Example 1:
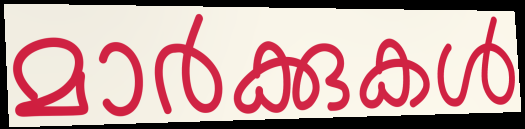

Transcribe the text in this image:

മാർക്കുകൾ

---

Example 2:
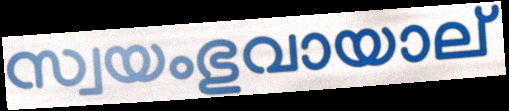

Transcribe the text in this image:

സ്വയംഭുവായാല്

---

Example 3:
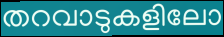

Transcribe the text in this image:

തറവാടുകളിലോ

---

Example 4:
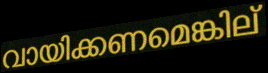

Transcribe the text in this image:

വായിക്കണമെങ്കില്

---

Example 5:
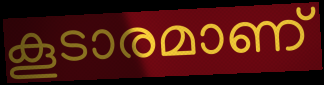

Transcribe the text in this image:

കൂടാരമാണ്